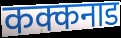
कक्कनाड